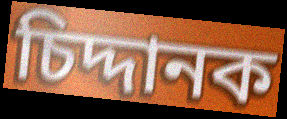
চিদ্দানক